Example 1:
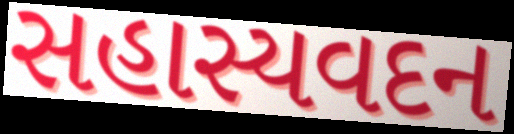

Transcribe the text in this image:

સહાસ્યવદન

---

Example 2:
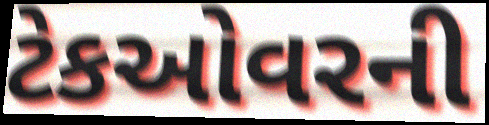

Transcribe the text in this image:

ટેકઓવરની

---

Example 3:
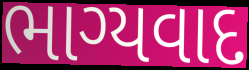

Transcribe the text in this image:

ભાગ્યવાદ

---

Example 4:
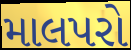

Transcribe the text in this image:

માલપરો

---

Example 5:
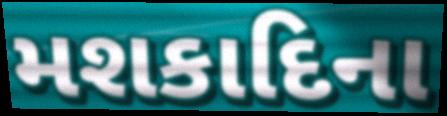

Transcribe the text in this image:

મશકાદિના